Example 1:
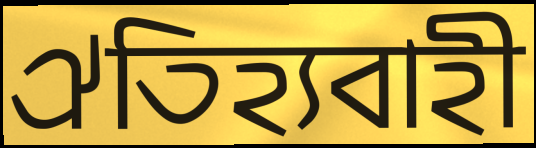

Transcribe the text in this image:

ঐতিহ্যবাহী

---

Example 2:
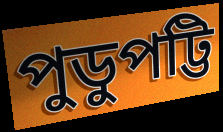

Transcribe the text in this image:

পুডুপট্টি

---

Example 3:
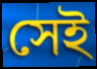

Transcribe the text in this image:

সেই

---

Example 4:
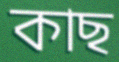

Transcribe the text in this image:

কাছ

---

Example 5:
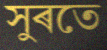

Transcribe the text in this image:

সুৰতে